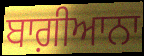
ਬਾਗ਼ੀਆਨਾ